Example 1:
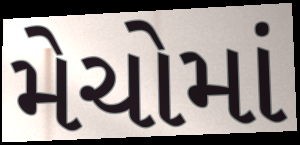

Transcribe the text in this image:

મેચોમાં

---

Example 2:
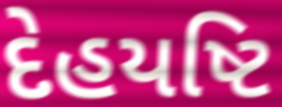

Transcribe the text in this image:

દેહયષ્ટિ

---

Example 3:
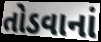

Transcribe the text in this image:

તોડવાનાં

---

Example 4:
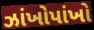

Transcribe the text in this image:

ઝાંખોપાંખો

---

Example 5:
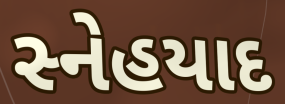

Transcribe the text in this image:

સ્નેહયાદ